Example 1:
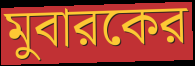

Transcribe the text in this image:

মুবারকের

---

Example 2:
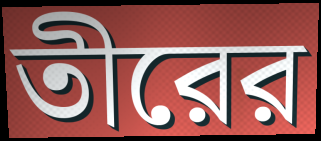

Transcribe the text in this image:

তীরের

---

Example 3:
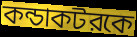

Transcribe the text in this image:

কন্ডাকটরকে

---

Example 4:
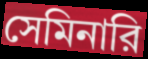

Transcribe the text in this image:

সেমিনারি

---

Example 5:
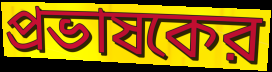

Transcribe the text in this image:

প্রভাষকের